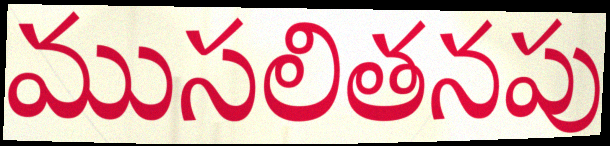
ముసలితనపు